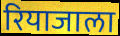
रियाजाला